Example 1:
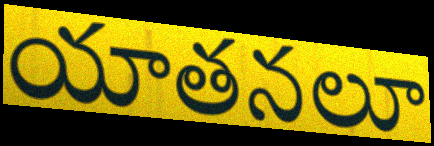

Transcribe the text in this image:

యాతనలూ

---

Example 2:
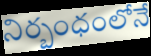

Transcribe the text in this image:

నిర్బంధంలోనే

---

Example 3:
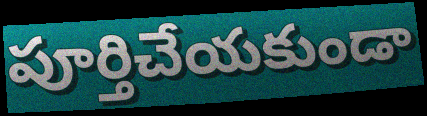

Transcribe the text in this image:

పూర్తిచేయకుండా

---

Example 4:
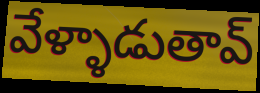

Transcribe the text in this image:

వేళ్ళాడుతావ్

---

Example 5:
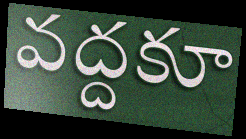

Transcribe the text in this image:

వద్దకూ